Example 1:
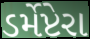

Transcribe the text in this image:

ડર્મેપ્ટેરા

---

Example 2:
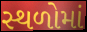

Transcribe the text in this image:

સ્‍થળોમાં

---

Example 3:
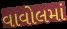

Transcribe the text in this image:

વાવોલમાં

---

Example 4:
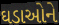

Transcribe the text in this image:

ઘડાઓને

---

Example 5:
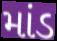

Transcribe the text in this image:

માંડ